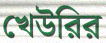
খেউরির